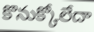
కొనుక్కోలేదా